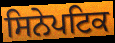
ਸਿਨੇਪਟਿਕ